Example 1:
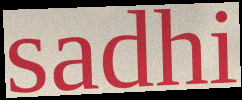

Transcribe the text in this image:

sadhi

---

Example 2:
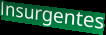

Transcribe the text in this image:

Insurgentes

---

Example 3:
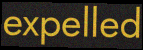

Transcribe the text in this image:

expelled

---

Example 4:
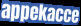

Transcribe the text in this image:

appekacce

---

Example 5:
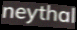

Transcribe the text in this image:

neythal